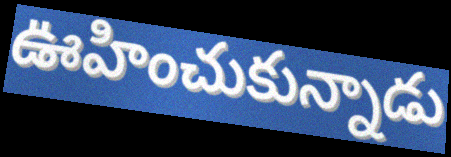
ఊహించుకున్నాడు